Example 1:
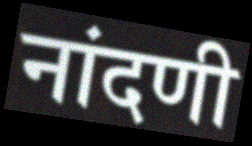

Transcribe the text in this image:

नांदणी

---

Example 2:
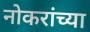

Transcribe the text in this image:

नोकरांच्या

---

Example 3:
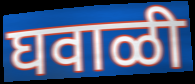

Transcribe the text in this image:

घवाळी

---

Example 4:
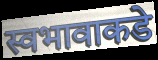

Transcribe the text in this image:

स्वभावाकडे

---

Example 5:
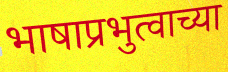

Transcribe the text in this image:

भाषाप्रभुत्वाच्या